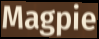
Magpie